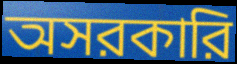
অসরকারি